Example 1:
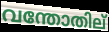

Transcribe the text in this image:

വന്തോതില്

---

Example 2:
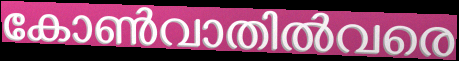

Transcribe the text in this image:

കോൺവാതിൽവരെ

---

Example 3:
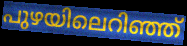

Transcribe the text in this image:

പുഴയിലെറിഞ്ഞ്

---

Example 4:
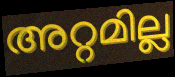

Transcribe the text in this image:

അറ്റമില്ല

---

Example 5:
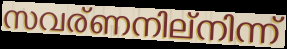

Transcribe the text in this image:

സവര്ണനില്നിന്ന്